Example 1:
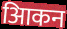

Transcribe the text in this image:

आिकन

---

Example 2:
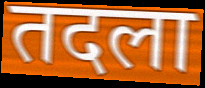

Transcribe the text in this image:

तदला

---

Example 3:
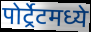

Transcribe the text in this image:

पोर्ट्रेटमध्ये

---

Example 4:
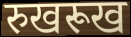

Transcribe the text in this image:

रुखरूख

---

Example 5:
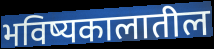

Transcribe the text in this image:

भविष्यकालातील